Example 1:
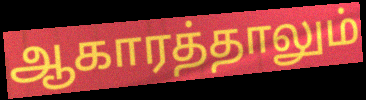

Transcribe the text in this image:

ஆகாரத்தாலும்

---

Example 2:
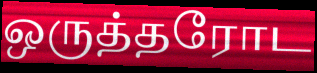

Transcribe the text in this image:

ஒருத்தரோட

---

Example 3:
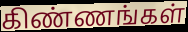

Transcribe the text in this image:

கிண்ணங்கள்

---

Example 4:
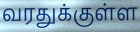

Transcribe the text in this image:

வரதுக்குள்ள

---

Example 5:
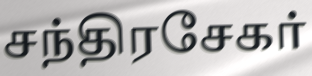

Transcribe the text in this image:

சந்திரசேகர்